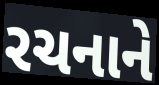
રચનાને